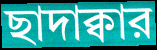
ছাদাক্বার